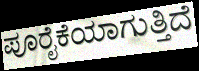
ಪೂರೈಕೆಯಾಗುತ್ತಿದೆ